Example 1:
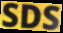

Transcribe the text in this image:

SDS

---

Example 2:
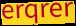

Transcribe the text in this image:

erqrer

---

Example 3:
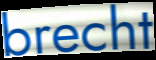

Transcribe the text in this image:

brecht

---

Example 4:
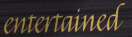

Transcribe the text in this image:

entertained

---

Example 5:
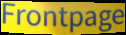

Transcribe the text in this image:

Frontpage